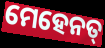
ମେହେନତ୍